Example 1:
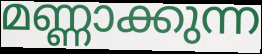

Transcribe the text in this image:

മണ്ണാക്കുന്ന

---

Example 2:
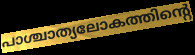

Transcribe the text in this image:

പാശ്ചാത്യലോകത്തിന്റെ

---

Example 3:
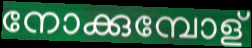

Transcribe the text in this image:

നോക്കുമ്പോള്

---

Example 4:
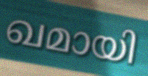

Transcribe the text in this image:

ഖമായി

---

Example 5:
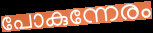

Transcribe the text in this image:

പോകുന്നേരം